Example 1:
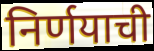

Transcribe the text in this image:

निर्णयाची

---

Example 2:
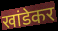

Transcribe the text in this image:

खांडेकर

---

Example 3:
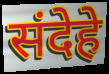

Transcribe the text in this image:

संदेहे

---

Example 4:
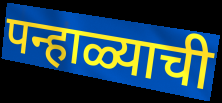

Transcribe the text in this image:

पन्हाळ्याची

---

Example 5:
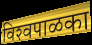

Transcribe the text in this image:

विश्वपाळका